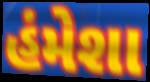
હંમેશા